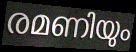
രമണിയും